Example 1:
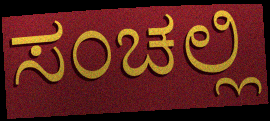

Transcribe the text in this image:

ಸಂಚಲ್ಲಿ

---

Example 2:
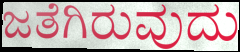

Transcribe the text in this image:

ಜತೆಗಿರುವುದು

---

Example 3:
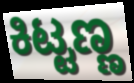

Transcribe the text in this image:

ಕಿಟ್ಟಣ್ಣ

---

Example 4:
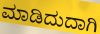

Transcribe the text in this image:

ಮಾಡಿದುದಾಗಿ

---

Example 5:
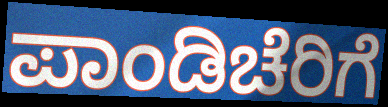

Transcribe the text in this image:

ಪಾಂಡಿಚೆರಿಗೆ